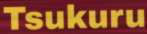
Tsukuru